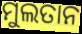
ମୁଲତାନ